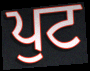
ਪੁਟ